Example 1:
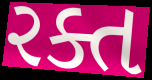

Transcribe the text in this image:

રક્ત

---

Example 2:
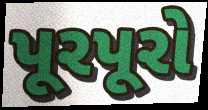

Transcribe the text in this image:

પૂરપૂરો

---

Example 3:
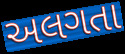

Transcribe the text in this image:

અલગતા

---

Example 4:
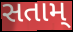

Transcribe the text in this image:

સતામ્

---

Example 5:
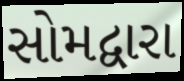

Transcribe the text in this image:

સોમદ્વારા